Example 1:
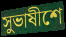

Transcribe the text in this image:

সুভাষীশে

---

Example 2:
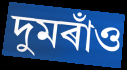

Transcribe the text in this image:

দুমৰাঁও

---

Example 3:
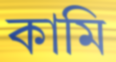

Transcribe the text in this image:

কামি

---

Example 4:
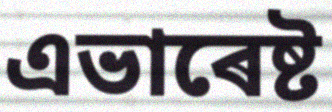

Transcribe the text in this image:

এভাৰেষ্ট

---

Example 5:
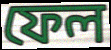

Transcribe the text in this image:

ফেল